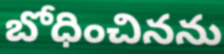
బోధించినను